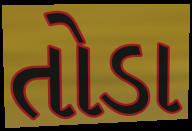
તોડા